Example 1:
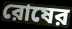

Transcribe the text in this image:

রোষের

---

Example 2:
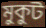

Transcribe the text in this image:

মুকুট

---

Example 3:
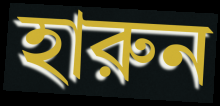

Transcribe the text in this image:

হারুন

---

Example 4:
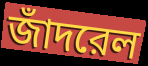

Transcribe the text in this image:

জাঁদরেল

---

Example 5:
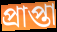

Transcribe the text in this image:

প্রাপ্তা